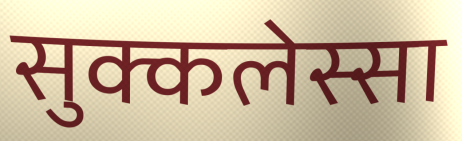
सुक्कलेस्सा